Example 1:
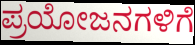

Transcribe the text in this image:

ಪ್ರಯೋಜನಗಳಿಗೆ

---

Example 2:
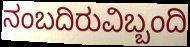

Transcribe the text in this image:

ನಂಬದಿರುವಿಬ್ಬಂದಿ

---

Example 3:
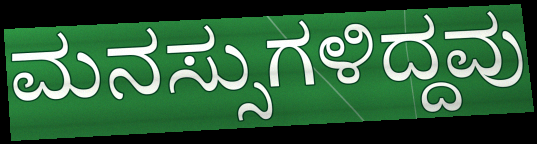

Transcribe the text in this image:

ಮನಸ್ಸುಗಳಿದ್ದವು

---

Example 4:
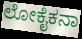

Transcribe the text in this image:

ಲೋಕೈಕನಾ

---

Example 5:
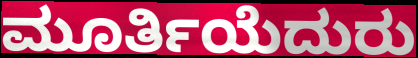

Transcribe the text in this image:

ಮೂರ್ತಿಯೆದುರು